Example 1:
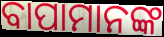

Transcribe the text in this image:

ବାପାମାନଙ୍କ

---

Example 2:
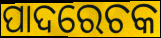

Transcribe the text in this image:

ପାଦରେଚକ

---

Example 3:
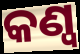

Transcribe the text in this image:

କଣ୍ୱ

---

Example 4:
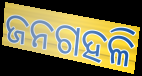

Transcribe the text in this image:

ଜନଗହଳି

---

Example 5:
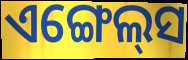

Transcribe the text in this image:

ଏଙ୍ଗେଲ୍‌ସ